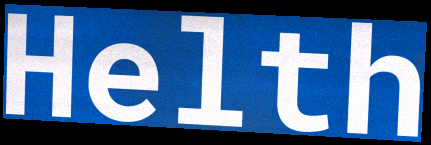
Helth